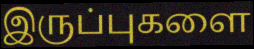
இருப்புகளை